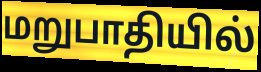
மறுபாதியில்